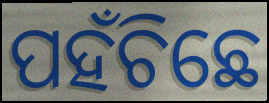
ପହଁଚିଛେ